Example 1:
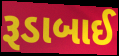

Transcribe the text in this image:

રૂડાબાઈ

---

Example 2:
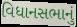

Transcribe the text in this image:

વિધાનસભાનું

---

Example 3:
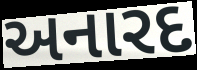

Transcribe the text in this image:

અનારદ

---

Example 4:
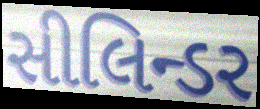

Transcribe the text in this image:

સીલિન્ડર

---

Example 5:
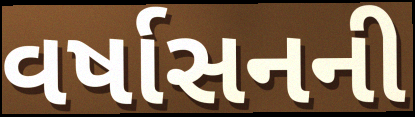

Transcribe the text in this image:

વર્ષાસનની